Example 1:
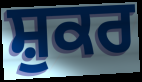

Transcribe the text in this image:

ਸ਼ੁਕਰ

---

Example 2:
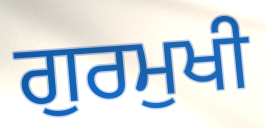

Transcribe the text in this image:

ਗੁਰਮੁਖੀ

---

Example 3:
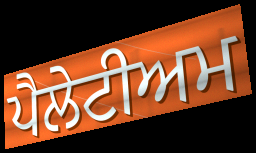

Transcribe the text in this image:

ਪੈਲੇਟੀਅਮ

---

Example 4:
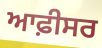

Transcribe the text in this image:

ਆਫ਼ੀਸਰ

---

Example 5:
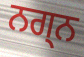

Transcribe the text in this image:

ਨਗ੍ਨ